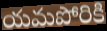
యమపోరికి